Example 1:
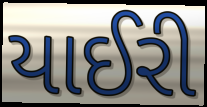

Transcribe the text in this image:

યાઈરી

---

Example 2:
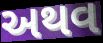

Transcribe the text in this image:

અથવ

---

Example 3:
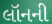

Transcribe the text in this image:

લૉનની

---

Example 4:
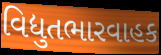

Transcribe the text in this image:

વિદ્યુતભારવાહક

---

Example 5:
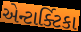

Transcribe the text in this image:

એન્ટાર્ક્ટિકા